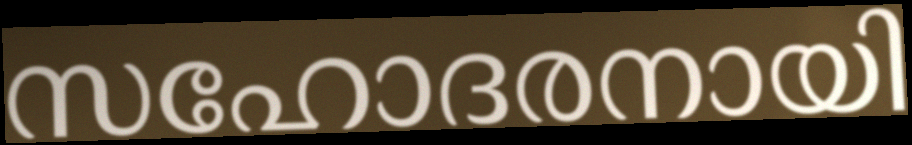
സഹോദരനായി